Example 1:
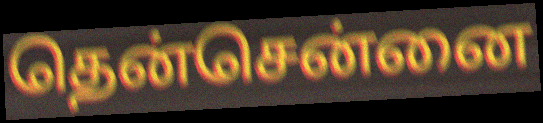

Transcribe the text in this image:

தென்சென்னை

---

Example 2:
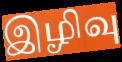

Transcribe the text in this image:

இழிவு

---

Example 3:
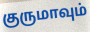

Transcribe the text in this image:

குருமாவும்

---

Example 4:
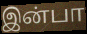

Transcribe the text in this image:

இன்பா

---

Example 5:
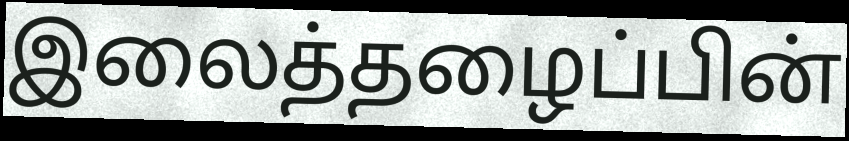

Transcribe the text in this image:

இலைத்தழைப்பின்